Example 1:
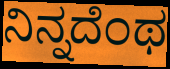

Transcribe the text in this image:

ನಿನ್ನದೆಂಥ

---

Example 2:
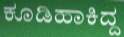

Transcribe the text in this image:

ಕೂಡಿಹಾಕಿದ್ದ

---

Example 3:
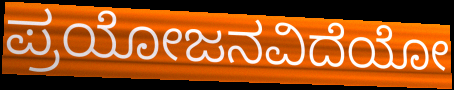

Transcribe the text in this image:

ಪ್ರಯೋಜನವಿದೆಯೋ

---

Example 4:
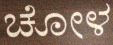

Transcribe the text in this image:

ಚೋಳ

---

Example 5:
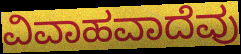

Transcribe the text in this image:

ವಿವಾಹವಾದೆವು